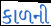
કાળની